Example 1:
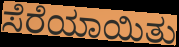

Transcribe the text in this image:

ಸೆರೆಯಾಯಿತು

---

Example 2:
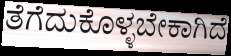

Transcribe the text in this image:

ತೆಗೆದುಕೊಳ್ಳಬೇಕಾಗಿದೆ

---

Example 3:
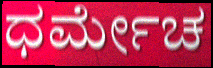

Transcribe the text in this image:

ಧರ್ಮೇಚ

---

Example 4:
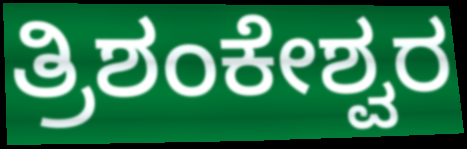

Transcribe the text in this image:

ತ್ರಿಶಂಕೇಶ್ವರ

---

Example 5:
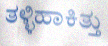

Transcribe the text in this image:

ತಳ್ಳಿಹಾಕಿತ್ತು